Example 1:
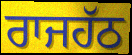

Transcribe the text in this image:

ਰਾਜਹੱਠ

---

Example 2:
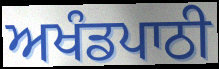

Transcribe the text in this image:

ਅਖੰਡਪਾਠੀ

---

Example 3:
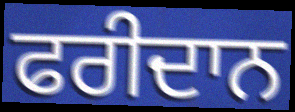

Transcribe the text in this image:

ਫਰੀਦਾਨ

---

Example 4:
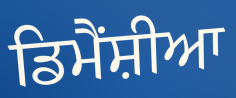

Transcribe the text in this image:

ਡਿਮੈਂਸ਼ੀਆ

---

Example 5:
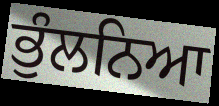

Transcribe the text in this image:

ਭੁੰਲਨਿਆ